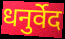
धनुर्वेद